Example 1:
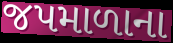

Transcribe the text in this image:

જપમાળાના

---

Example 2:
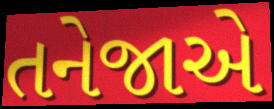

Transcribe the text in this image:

તનેજાએ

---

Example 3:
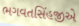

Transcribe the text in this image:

ભગવતસિંહજીએ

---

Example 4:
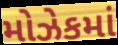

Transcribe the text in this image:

મોઝેકમાં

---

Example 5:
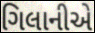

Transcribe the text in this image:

ગિલાનીએ